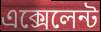
এক্সেলেন্ট